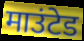
माउंटेड